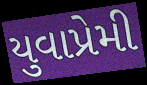
યુવાપ્રેમી